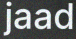
jaad